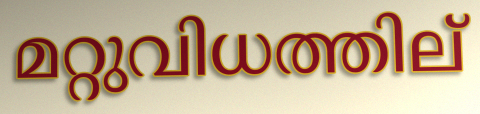
മറ്റുവിധത്തില്